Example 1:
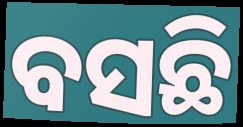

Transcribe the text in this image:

ବସଛି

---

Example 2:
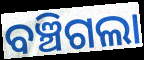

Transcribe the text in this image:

ବଞ୍ଚିଗଲା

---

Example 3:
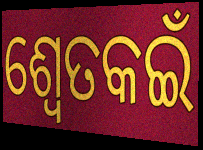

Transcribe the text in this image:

ଶ୍ୱେତକଇଁ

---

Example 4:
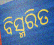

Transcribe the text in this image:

ବିସ୍ମରିତ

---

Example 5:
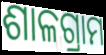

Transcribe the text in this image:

ଶାଳଗ୍ରାମ